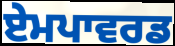
ਏਮਪਾਵਰਡ